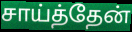
சாய்த்தேன்